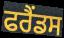
ਫਰੈਂਡਸ